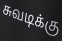
சுவடிக்கு